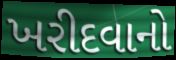
ખરીદવાનો